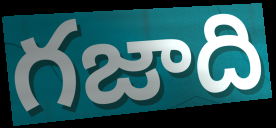
గజాది